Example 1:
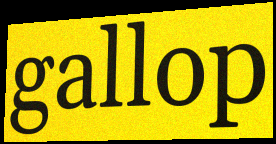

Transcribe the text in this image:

gallop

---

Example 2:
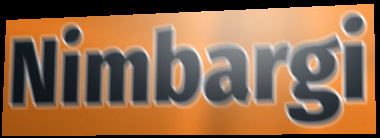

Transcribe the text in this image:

Nimbargi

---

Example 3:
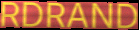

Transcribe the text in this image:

RDRAND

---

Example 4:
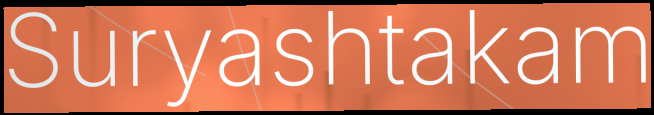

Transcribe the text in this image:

Suryashtakam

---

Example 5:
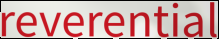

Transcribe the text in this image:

reverential